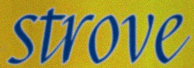
strove